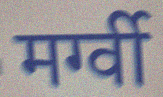
मर्ग्वी